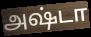
அஷ்டா